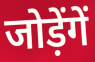
जोड़ेंगें